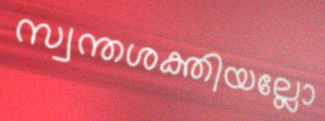
സ്വന്തശക്തിയല്ലോ